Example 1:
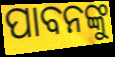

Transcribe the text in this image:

ପାବନଙ୍କୁ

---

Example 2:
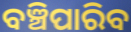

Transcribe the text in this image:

ବଞ୍ଚିପାରିବ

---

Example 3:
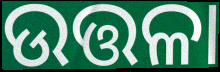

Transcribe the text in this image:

ଉତ୍ତଳା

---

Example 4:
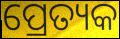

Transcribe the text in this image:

ପ୍ରେତ୍ୟକ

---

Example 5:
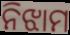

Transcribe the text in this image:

ନିଝାମ